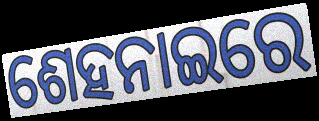
ଶେହନାଇରେ